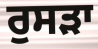
ਰੁਸੜਾ